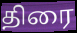
திரை